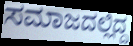
ಸಮಾಜದಲ್ಲಿದ್ದ